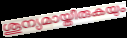
ശൂന്യമായ്തീരുകയും